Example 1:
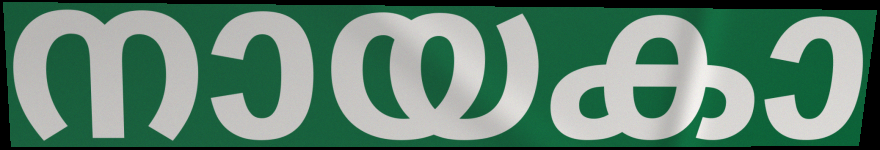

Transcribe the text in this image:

നായകാ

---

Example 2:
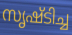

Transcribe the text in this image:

സൃഷ്ടിച്ച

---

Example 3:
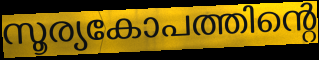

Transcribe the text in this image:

സൂര്യകോപത്തിന്റെ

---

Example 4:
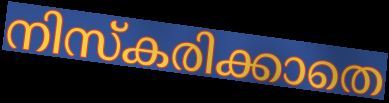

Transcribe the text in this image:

നിസ്കരിക്കാതെ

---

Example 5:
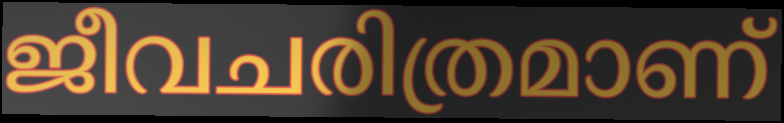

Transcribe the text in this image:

ജീവചരിത്രമാണ്